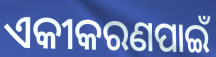
ଏକୀକରଣପାଇଁ